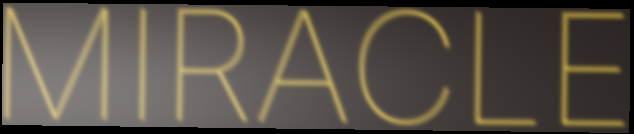
MIRACLE